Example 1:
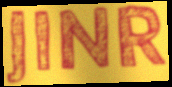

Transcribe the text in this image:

JINR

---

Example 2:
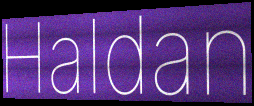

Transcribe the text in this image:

Haldan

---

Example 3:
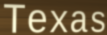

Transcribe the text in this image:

Texas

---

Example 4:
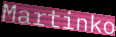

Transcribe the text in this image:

Martinko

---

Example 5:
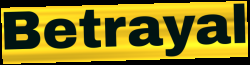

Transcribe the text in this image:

Betrayal